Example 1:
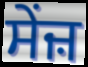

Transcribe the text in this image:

ਸੇਂਜ਼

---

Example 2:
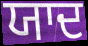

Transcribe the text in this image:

ਯਾਦ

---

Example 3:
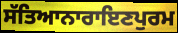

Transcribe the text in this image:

ਸੱਤਿਆਨਾਰਾਇਣਪੁਰਮ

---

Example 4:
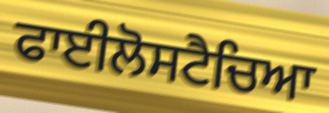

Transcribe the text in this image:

ਫਾਈਲੋਸਟੈਚਿਆ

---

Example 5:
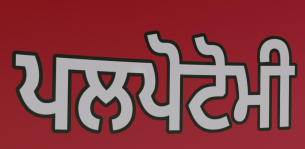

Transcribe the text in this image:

ਪਲਪੋਟੋਮੀ